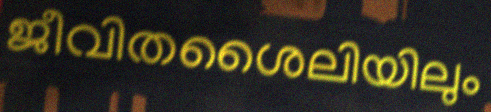
ജീവിതശൈലിയിലും